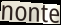
nonte